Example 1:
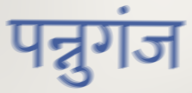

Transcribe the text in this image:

पन्नुगंज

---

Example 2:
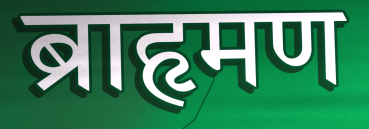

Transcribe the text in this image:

ब्राहृमण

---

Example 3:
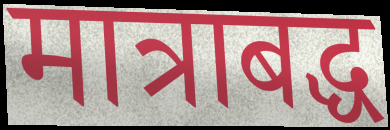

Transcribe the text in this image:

मात्राबद्ध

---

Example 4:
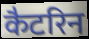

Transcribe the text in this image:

कैटरिन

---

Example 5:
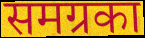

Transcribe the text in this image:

समग्रका